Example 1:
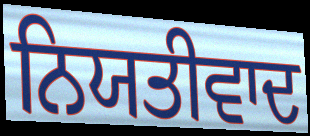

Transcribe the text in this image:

ਨਿਯਤੀਵਾਦ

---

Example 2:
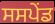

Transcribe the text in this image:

ਸਸਪੇੰਡ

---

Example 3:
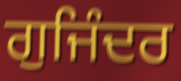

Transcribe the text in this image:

ਗੁਜਿੰਦਰ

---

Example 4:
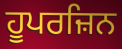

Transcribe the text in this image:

ਹੂਪਰਜ਼ਿਨ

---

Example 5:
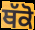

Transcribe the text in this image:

ਥੱਕੋ